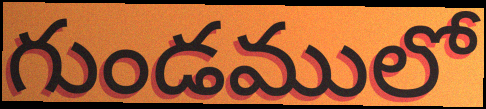
గుండములో